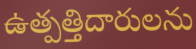
ఉత్పత్తిదారులను